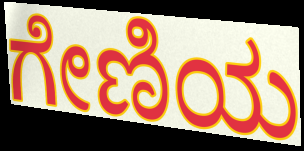
ಗೇಣಿಯ